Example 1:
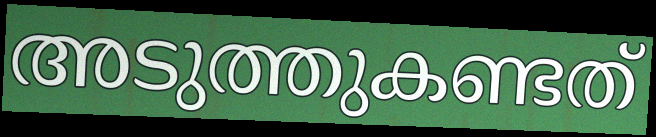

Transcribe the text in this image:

അടുത്തുകണ്ടത്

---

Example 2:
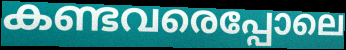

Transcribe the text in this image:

കണ്ടവരെപ്പോലെ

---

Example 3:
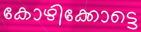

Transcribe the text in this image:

കോഴിക്കോട്ടെ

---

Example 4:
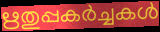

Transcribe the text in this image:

ഋതുപ്പകർച്ചകൾ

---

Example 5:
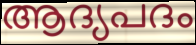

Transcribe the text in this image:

ആദ്യപദം